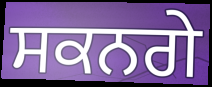
ਸਕਨਗੇ